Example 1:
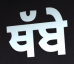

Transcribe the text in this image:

ਥੱਬੇ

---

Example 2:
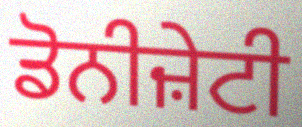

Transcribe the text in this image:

ਡੋਨੀਜ਼ੇਟੀ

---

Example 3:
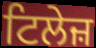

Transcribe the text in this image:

ਟਿਲੇਜ਼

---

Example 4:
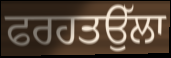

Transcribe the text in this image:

ਫਰਹਤਉੱਲਾ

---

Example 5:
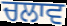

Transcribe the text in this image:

ਚਲਾਵ